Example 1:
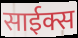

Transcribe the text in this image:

साईक्स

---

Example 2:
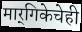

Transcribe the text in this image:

मार्गिकेचेही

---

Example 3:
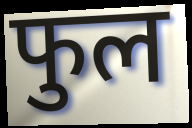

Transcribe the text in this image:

फुल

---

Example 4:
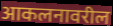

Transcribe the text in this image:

आकलनावरील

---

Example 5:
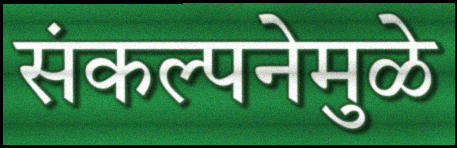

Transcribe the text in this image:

संकल्पनेमुळे